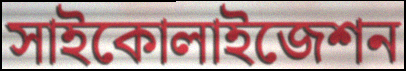
সাইকোলাইজেশন